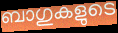
ബാഗുകളുടെ